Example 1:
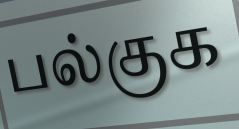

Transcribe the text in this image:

பல்குக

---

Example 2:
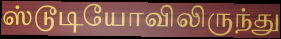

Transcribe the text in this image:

ஸ்டூடியோவிலிருந்து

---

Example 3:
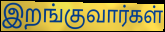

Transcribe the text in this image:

இறங்குவார்கள்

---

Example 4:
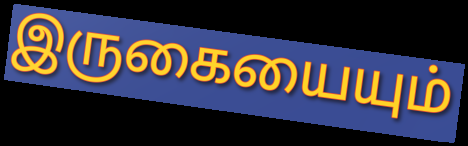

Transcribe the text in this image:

இருகையையும்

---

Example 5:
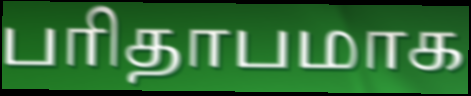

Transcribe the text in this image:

பரிதாபமாக